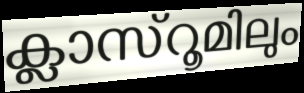
ക്ലാസ്റൂമിലും